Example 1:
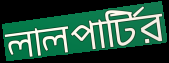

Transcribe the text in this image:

লালপার্টির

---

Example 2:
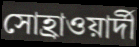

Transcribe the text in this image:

সোহ্রাওয়ার্দী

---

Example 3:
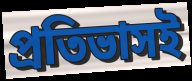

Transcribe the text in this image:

প্রতিভাসই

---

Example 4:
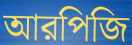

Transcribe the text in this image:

আরপিজি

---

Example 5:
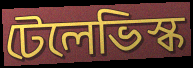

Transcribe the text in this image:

টেলেভিস্ক